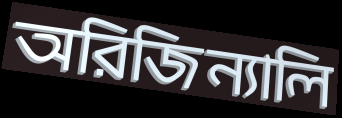
অরিজিন্যালি